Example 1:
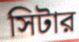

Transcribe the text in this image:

সিটার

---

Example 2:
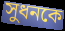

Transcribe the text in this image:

সুধনকে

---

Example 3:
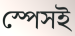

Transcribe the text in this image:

স্পেসই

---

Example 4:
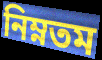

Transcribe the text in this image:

নিম্নতম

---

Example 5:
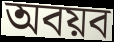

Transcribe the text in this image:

অবয়ব